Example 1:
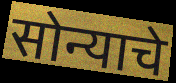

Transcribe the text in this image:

सोन्याचे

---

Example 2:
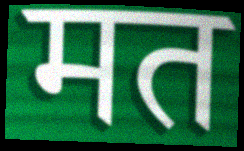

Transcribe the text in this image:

मत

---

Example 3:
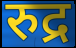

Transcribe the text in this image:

रुद्र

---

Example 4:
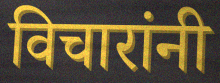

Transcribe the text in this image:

विचारांनी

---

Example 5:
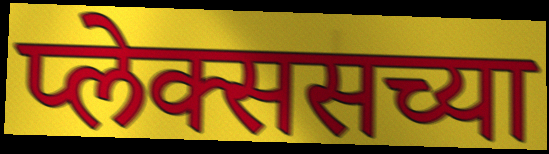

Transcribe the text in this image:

प्लेक्ससच्या